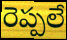
రెప్పలే